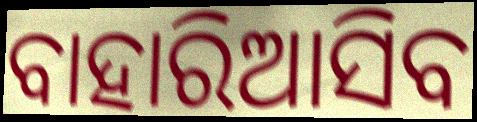
ବାହାରିଆସିବ